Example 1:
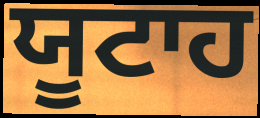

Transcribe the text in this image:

ਯੂਟਾਹ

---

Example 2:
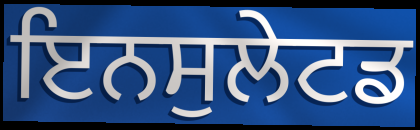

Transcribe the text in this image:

ਇਨਸੁਲੇਟਡ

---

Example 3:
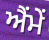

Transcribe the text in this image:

ਐਂਮੇਂ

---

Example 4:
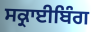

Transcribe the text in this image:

ਸਕ੍ਰਾਈਬਿੰਗ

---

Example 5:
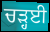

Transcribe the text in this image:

ਚੜ੍ਹਈ